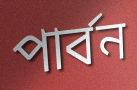
পাৰ্বন